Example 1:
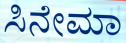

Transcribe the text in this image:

ಸಿನೇಮಾ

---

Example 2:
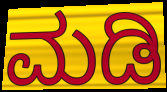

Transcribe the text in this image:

ಮಡಿ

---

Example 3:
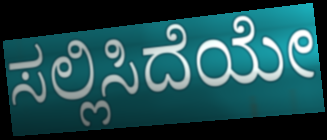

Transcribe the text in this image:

ಸಲ್ಲಿಸಿದೆಯೇ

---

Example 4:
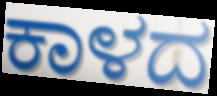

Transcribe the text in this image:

ಕಾಳದ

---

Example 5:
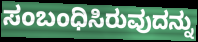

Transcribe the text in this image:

ಸಂಬಂಧಿಸಿರುವುದನ್ನು